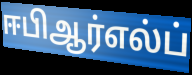
ஈபிஆர்எல்ப்